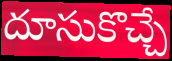
దూసుకొచ్చే